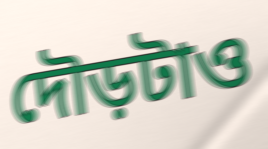
দৌড়টাও